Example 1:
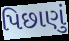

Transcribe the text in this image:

પિછાણું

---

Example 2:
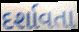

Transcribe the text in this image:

દર્શાવતા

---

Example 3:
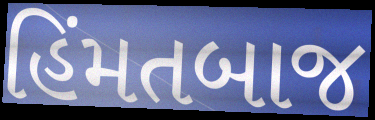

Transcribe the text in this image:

હિંમતબાજ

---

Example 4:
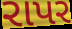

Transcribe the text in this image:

રાપર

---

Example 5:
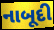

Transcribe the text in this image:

નાબૂદી